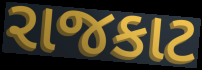
રાજકાટ